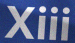
Xiii